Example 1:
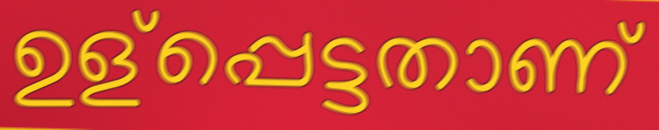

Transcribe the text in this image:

ഉള്പ്പെട്ടതാണ്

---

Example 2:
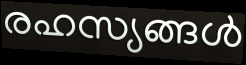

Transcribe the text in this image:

രഹസ്യങ്ങൾ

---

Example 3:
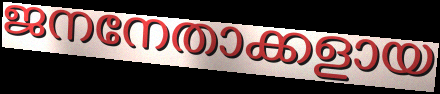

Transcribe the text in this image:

ജനനേതാക്കളായ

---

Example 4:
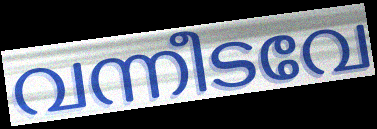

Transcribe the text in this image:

വന്നീടവേ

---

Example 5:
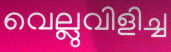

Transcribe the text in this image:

വെല്ലുവിളിച്ച